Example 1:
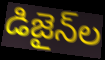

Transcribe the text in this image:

డిజైన్‌ల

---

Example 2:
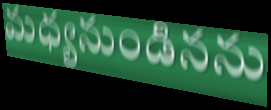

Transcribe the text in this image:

మధ్యనుండినను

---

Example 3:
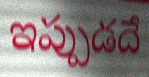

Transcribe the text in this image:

ఇప్పుడదే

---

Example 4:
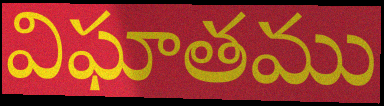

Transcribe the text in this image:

విఘాతము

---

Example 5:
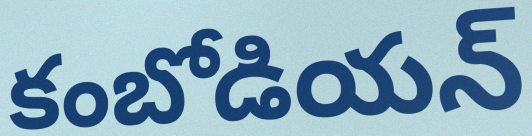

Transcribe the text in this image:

కంబోడియన్